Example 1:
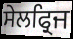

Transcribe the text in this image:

ਸੇਲਫ੍ਰਿਜ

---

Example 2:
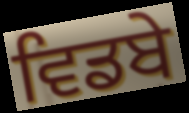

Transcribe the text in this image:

ਵਿਡਬੇ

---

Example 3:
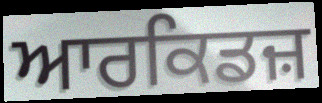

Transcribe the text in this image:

ਆਰਕਿਡਜ਼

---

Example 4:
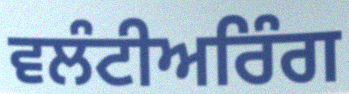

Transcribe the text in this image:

ਵਲੰਟੀਅਰਿੰਗ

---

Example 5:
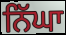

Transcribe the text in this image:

ਨਿੱਘਾ